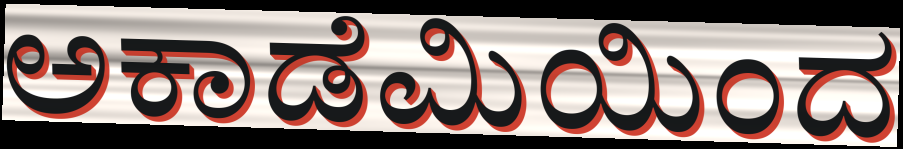
ಅಕಾಡೆಮಿಯಿಂದ